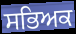
ਸਭਿਅਕ